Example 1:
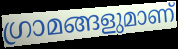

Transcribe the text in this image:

ഗ്രാമങ്ങളുമാണ്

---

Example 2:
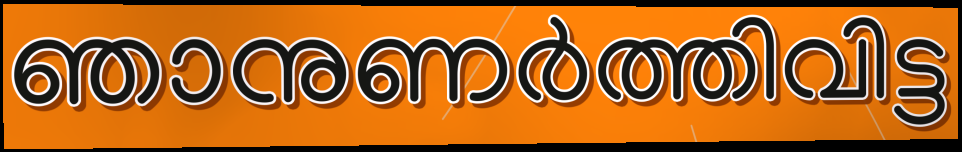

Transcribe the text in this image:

ഞാനുണർത്തിവിട്ട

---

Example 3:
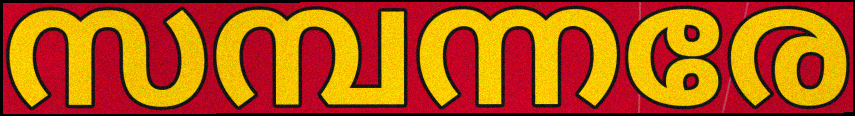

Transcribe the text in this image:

സമ്പന്നരേ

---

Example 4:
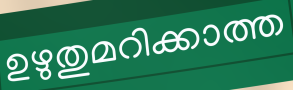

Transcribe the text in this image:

ഉഴുതുമറിക്കാത്ത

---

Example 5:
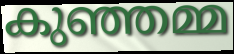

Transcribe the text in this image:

കുഞ്ഞമ്മ